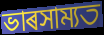
ভাৰসাম্যত